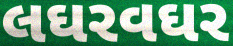
લઘરવઘર